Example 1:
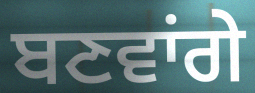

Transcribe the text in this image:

ਬਣਵਾਂਗੇ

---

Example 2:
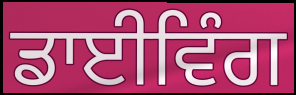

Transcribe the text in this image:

ਡਾਈਵਿੰਗ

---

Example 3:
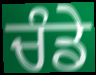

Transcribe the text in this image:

ਚੰਡੇ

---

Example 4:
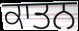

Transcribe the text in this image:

ਕਾਤਨ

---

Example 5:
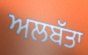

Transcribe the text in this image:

ਅਲਬੱਤਾ